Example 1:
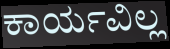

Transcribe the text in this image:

ಕಾರ್ಯವಿಲ್ಲ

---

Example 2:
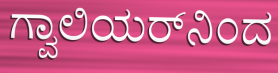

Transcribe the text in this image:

ಗ್ವಾಲಿಯರ್‌ನಿಂದ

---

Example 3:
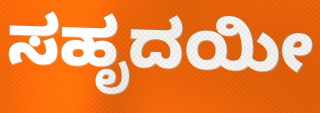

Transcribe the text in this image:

ಸಹೃದಯೀ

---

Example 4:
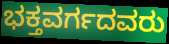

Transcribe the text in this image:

ಭಕ್ತವರ್ಗದವರು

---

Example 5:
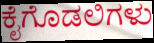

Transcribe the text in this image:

ಕೈಗೊಡಲಿಗಳು